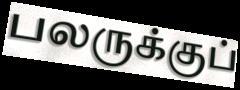
பலருக்குப்